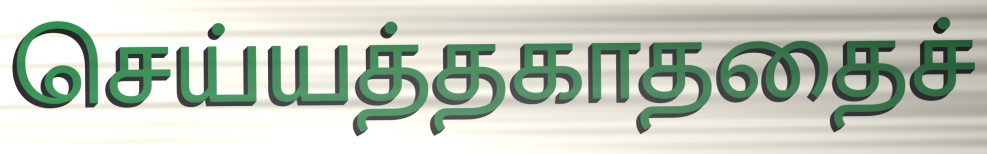
செய்யத்தகாததைச்